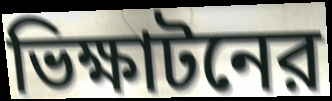
ভিক্ষাটনের